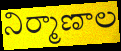
నిర్మాణాల